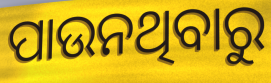
ପାଉନଥିବାରୁ